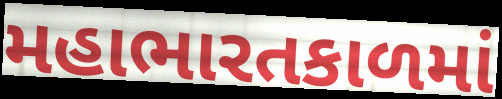
મહાભારતકાળમાં